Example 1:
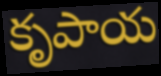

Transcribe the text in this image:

కృపాయ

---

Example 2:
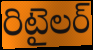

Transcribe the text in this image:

రిటైలర్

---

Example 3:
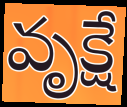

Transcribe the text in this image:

వృక్షే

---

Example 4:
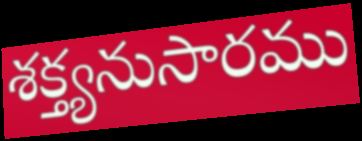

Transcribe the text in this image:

శక్త్యనుసారము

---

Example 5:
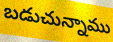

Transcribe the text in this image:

బడుచున్నాము